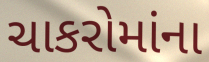
ચાકરોમાંના